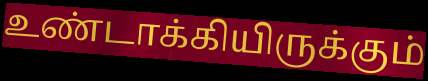
உண்டாக்கியிருக்கும்